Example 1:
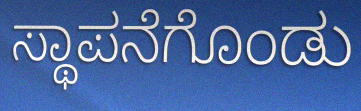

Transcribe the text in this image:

ಸ್ಥಾಪನೆಗೊಂಡು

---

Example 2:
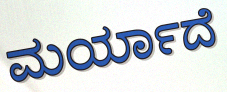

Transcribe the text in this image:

ಮರ್ಯಾದೆ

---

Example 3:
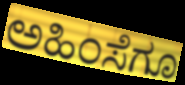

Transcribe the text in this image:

ಅಹಿಂಸೆಗೂ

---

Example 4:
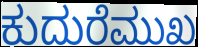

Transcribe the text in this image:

ಕುದುರೆಮುಖ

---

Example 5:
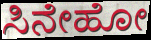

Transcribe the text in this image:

ಸಿನೇಹೋ